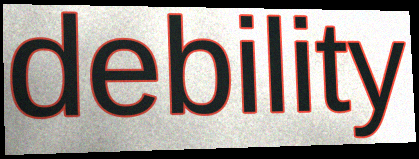
debility